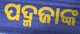
ପଦ୍ମଜାଙ୍କ